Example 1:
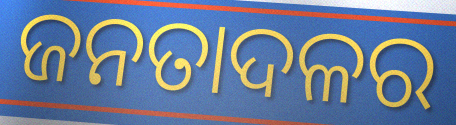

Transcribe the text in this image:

ଜନତାଦଳର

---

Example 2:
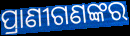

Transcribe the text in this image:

ପ୍ରାଣୀଗଣଙ୍କର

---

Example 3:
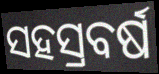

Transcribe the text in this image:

ସହସ୍ରବର୍ଷ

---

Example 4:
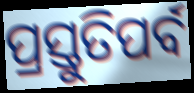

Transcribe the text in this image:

ପ୍ରସ୍ତୁତିପର୍ବ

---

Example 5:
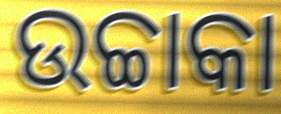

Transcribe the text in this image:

ଉଚ୍ଚାକା